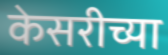
केसरीच्या